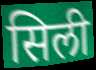
सिली